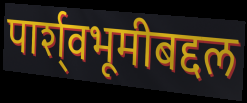
पार्श्वभूमीबद्दल